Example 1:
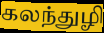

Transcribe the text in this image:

கலந்துழி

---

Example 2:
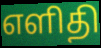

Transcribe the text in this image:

எளிதி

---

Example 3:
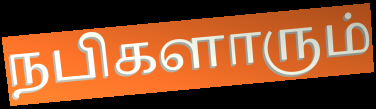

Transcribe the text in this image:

நபிகளாரும்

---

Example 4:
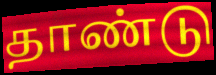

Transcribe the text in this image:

தாண்டு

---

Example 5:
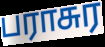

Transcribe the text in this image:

பராசுர